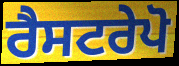
ਰੈਸਟਰੇਪੋ